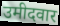
उमीदवार